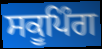
ਸਕੂਪਿੰਗ